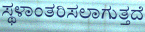
ಸ್ಥಳಾಂತರಿಸಲಾಗುತ್ತದೆ